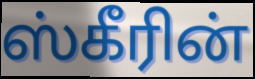
ஸ்கீரின்